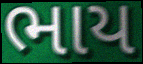
ભાય